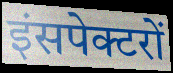
इंसपेक्टरों